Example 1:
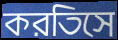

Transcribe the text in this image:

করতিসে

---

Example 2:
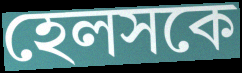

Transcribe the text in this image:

হেলসকে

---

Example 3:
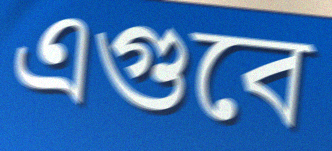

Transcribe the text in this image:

এগুবে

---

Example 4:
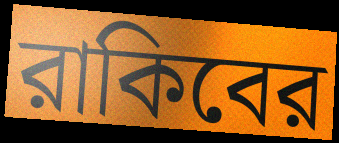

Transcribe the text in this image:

রাকিবের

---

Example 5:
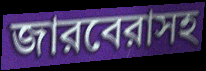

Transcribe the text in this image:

জারবেরাসহ